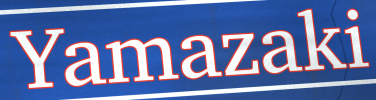
Yamazaki